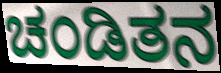
ಚಂಡಿತನ